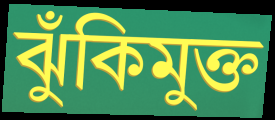
ঝুঁকিমুক্ত